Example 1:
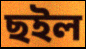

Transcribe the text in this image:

ছইল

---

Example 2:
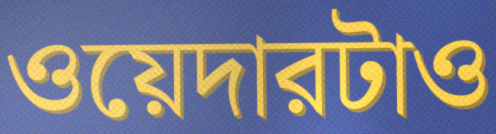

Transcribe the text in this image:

ওয়েদারটাও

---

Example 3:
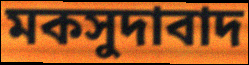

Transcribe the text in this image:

মকসুদাবাদ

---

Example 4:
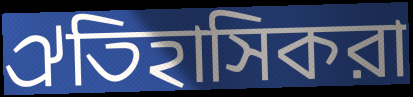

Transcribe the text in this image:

ঐতিহাসিকরা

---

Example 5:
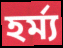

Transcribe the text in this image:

হর্ম্য